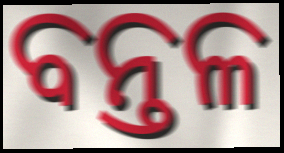
ବନ୍ତଳ